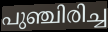
പുഞ്ചിരിച്ച